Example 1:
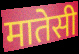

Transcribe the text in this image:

मातेसी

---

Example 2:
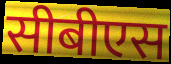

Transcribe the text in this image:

सीबीएस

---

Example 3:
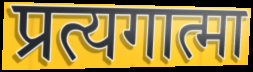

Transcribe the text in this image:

प्रत्यगात्मा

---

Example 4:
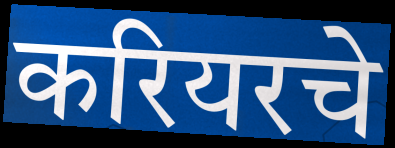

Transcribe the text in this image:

करियरचे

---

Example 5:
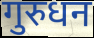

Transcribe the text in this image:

गुरुधन